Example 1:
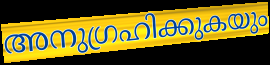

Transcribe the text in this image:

അനുഗ്രഹിക്കുകയും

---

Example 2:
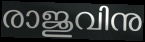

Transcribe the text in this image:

രാജുവിനു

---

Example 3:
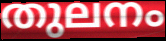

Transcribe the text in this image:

തുലനം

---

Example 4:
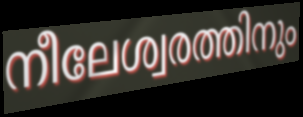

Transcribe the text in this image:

നീലേശ്വരത്തിനും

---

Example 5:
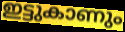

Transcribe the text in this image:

ഇട്ടുകാണും